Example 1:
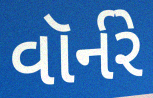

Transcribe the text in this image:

વૉર્નરે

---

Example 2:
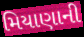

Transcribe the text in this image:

મિયાણાની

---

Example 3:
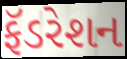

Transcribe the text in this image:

ફૅડરેશન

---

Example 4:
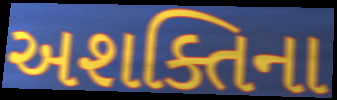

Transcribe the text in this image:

અશક્તિના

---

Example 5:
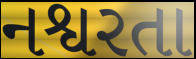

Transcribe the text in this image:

નશ્વરતા